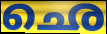
ഛെ